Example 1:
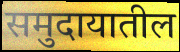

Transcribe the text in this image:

समुदायातील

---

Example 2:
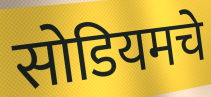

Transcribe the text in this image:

सोडियमचे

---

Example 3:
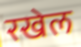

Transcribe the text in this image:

रखेल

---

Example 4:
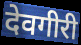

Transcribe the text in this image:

देवगीरी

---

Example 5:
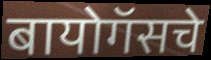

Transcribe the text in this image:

बायोगॅसचे